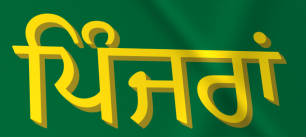
ਪਿੰਜਰਾਂ